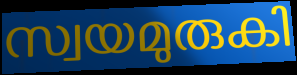
സ്വയമുരുകി